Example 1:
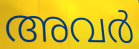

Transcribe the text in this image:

അവർ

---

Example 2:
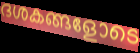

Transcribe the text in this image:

ദശകങ്ങളോടെ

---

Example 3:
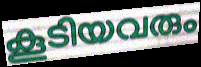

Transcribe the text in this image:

കൂടിയവരും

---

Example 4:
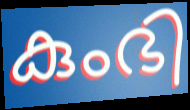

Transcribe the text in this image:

കുംഭി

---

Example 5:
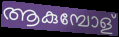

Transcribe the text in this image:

ആകുമ്പോള്